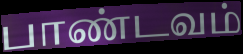
பாண்டவம்